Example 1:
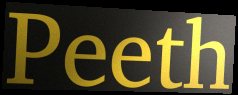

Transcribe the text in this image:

Peeth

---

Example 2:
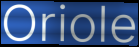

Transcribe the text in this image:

Oriole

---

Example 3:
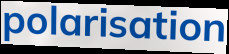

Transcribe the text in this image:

polarisation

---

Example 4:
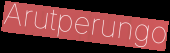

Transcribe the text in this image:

Arutperungo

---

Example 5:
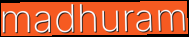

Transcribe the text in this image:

madhuram